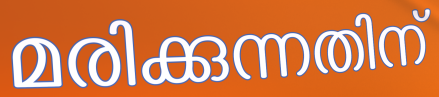
മരിക്കുന്നതിന്